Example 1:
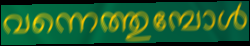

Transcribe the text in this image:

വന്നെത്തുമ്പോൾ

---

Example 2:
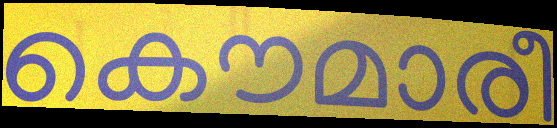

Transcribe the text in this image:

കൌമാരീ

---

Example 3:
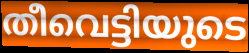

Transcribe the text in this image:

തീവെട്ടിയുടെ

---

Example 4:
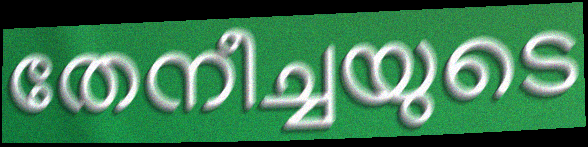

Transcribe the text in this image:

തേനീച്ചയുടെ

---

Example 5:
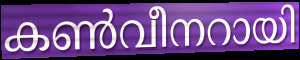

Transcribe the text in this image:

കൺവീനറായി